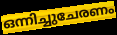
ഒന്നിച്ചുചേരണം